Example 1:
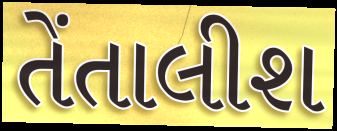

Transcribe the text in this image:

તેંતાલીશ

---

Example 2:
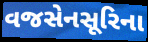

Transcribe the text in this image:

વજસેનસૂરિના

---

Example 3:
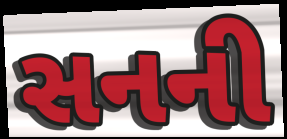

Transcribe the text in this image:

સનની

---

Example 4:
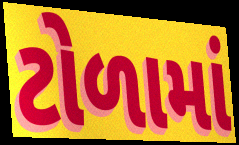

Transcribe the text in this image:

ટોળામાં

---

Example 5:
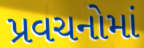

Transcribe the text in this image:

પ્રવચનોમાં